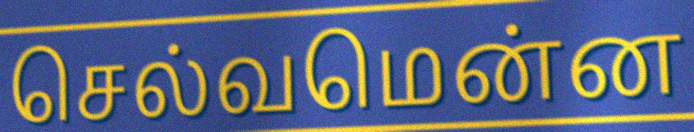
செல்வமென்ன